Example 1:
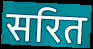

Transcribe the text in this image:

सरित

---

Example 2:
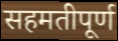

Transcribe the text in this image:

सहमतीपूर्ण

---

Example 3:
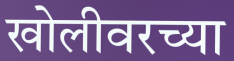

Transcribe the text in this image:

खोलीवरच्या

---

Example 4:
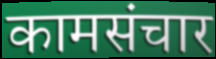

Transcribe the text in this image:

कामसंचार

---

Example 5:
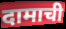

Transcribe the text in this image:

दामाची